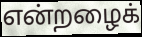
என்றழைக்